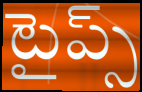
టైప్స్